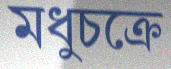
মধুচক্রে